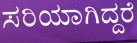
ಸರಿಯಾಗಿದ್ದರೆ